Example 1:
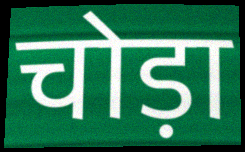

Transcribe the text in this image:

चोड़ा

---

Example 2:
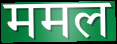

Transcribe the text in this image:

ममल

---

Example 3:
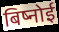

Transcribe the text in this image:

बिष्नोई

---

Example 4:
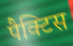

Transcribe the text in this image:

पैक्टिस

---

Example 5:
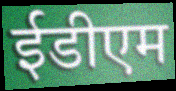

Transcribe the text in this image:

ईडीएम